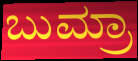
ಬುಮ್ರಾ